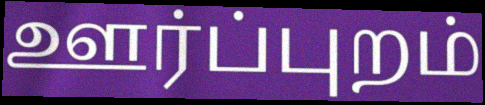
ஊர்ப்புறம்